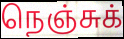
நெஞ்சுக்